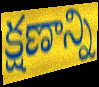
క్షణాన్ని